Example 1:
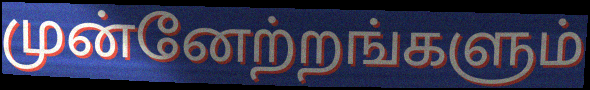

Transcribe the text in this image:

முன்னேற்றங்களும்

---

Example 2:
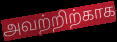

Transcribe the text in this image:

அவற்றிற்காக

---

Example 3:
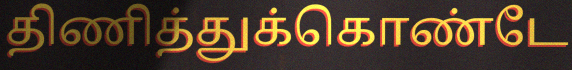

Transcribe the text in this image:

திணித்துக்கொண்டே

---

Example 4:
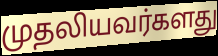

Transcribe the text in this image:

முதலியவர்களது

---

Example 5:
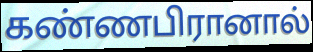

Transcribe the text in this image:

கண்ணபிரானால்